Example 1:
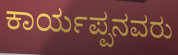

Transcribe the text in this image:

ಕಾರ್ಯಪ್ಪನವರು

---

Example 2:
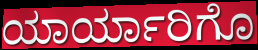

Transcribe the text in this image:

ಯಾರ್ಯಾರಿಗೊ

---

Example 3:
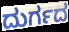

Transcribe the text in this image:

ದುರ್ಗದ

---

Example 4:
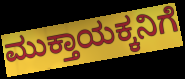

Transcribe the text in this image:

ಮುಕ್ತಾಯಕ್ಕನಿಗೆ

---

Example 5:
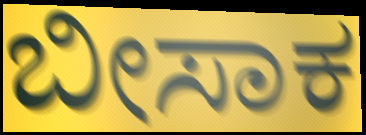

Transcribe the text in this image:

ಬೀಸಾಕ